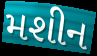
મશીન